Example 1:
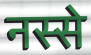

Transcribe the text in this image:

नस्से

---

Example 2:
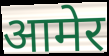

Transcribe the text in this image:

आमेर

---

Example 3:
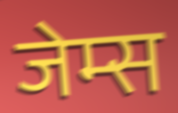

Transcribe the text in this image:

जेम्स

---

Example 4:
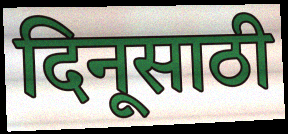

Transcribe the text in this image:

दिनूसाठी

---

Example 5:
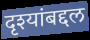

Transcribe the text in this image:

दृश्यांबद्दल